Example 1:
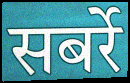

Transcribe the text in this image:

सबर्रे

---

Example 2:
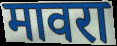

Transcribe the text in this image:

मावरा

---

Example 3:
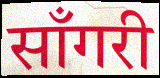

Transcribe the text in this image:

साँगरी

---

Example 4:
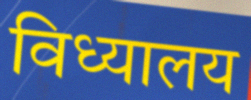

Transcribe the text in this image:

विध्यालय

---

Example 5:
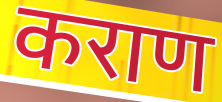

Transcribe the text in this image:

कराण